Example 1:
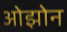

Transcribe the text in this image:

ओझोन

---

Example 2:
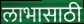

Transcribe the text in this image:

लाभासाठी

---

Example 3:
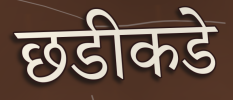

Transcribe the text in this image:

छडीकडे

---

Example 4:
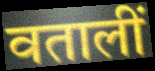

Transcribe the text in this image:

वतालीं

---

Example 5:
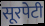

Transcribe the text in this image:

सूरपेटी